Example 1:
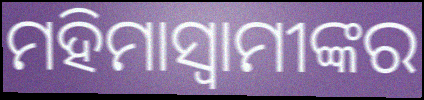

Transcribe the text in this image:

ମହିମାସ୍ୱାମୀଙ୍କର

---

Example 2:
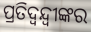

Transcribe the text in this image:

ପ୍ରତିଦ୍ୱନ୍ଦ୍ୱୀଙ୍କର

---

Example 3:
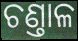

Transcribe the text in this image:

ଚଣ୍ତାଳ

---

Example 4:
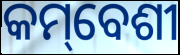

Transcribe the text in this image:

କମ୍‌ବେଶୀ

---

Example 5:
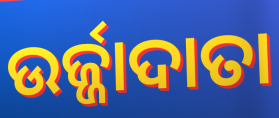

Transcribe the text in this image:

ଉର୍ଜ୍ଜାଦାତା